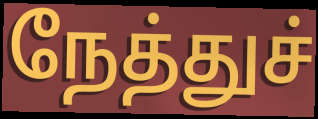
நேத்துச்